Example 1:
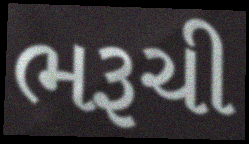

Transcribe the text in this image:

ભરૂચી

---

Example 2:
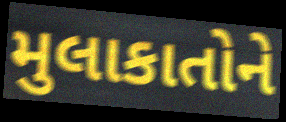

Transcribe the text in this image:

મુલાકાતોને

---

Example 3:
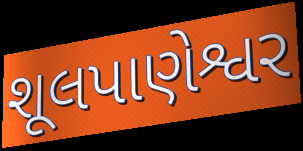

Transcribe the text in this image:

શૂલપાણેશ્વર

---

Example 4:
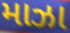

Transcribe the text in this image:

માઝા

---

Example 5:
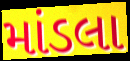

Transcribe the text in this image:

માંડલા